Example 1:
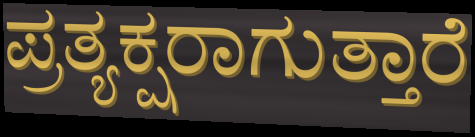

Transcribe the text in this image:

ಪ್ರತ್ಯಕ್ಷರಾಗುತ್ತಾರೆ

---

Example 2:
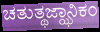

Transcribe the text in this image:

ಚತುತ್ಥಜ್ಝಾನಿಕಂ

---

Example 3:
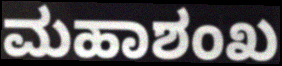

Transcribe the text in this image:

ಮಹಾಶಂಖ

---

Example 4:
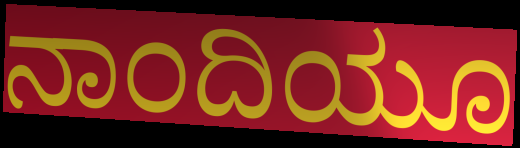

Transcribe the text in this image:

ನಾಂದಿಯೂ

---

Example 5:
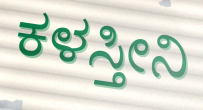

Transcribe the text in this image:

ಕಳಸ್ತೀನಿ